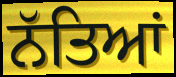
ਨੱਤਿਆਂ